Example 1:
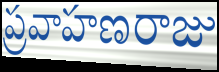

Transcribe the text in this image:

ప్రవాహణరాజు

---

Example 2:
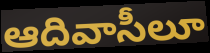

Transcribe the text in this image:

ఆదివాసీలూ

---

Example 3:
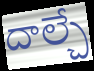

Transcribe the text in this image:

దాల్చే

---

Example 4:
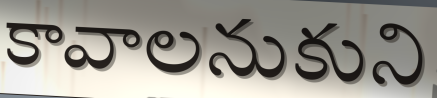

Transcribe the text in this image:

కావాలనుకుని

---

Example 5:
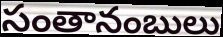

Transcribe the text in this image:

సంతానంబులు